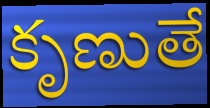
కృణుతే